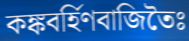
কঙ্কবর্হিণবাজিতৈঃ